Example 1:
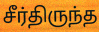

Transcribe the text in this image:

சீர்திருந்த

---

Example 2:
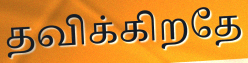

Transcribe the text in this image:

தவிக்கிறதே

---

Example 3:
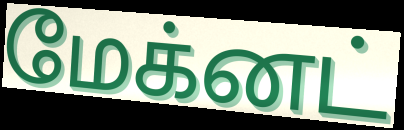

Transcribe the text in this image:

மேக்னட்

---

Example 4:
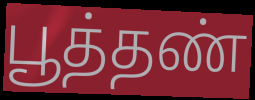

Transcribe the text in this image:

பூத்தண்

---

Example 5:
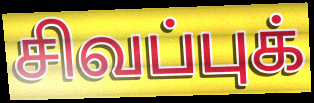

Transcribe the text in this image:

சிவப்புக்